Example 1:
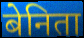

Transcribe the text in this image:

बेनिता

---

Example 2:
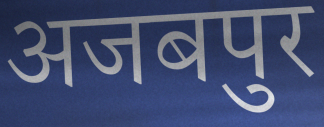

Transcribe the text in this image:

अजबपुर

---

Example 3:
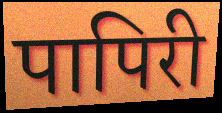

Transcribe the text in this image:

पापिरी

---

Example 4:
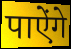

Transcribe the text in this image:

पाऐंगे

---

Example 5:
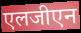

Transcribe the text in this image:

एलजीएन